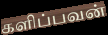
களிப்பவன்